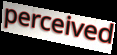
perceived